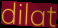
dilat